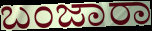
ಬಂಜಾರಾ